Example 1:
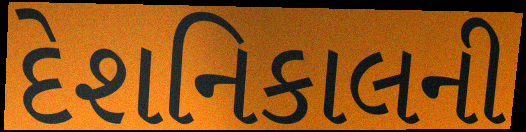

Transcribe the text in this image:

દેશનિકાલની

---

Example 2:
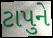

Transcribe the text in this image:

ટાપુને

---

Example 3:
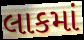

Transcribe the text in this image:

લાકમાં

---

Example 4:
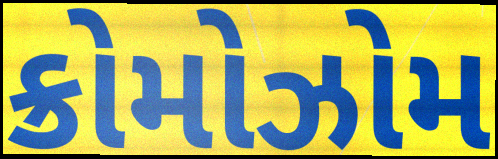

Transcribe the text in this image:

ક્રોમોઝોમ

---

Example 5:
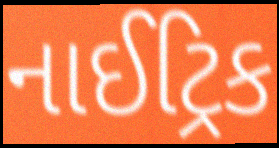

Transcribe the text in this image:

નાઈટ્રિક